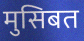
मुसिबत